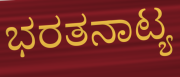
ಭರತನಾಟ್ಯ